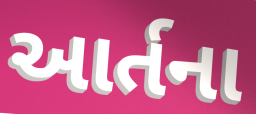
આર્તના